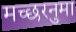
मच्छरनुमा